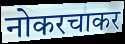
नोकरचाकर